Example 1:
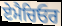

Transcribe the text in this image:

ਏਮੈਚਿਓਰ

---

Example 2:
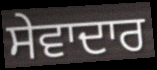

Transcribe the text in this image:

ਸੇਵਾਦਾਰ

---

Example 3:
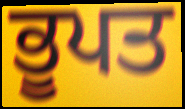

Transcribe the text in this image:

ਭੂਪਤ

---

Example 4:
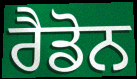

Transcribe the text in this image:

ਰੈਡੋਨ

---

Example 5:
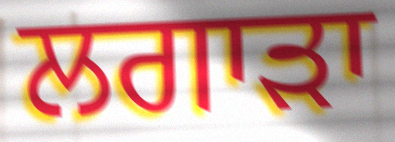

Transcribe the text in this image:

ਲਗਾੜਾ